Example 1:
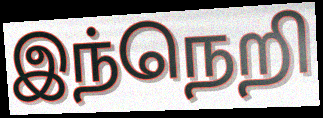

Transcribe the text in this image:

இந்நெறி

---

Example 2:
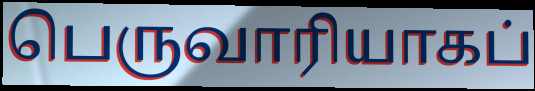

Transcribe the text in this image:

பெருவாரியாகப்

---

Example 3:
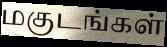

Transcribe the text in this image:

மகுடங்கள்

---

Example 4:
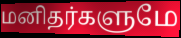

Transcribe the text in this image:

மனிதர்களுமே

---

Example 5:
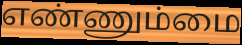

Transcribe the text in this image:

எண்ணும்மை